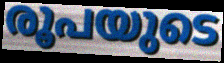
രൂപയുടെ